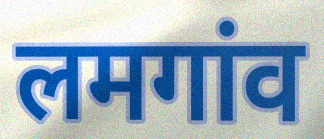
लमगांव